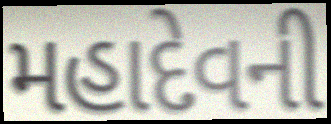
મહાદેવની